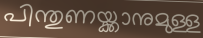
പിന്തുണയ്ക്കാനുമുള്ള